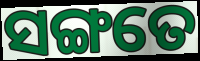
ସଙ୍ଗତେ